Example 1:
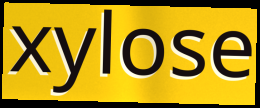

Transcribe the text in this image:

xylose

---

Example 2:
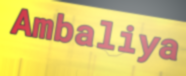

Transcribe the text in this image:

Ambaliya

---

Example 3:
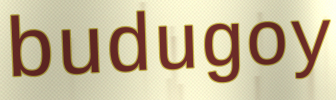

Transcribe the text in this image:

budugoy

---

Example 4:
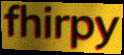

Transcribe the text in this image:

fhirpy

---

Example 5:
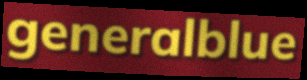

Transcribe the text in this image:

generalblue